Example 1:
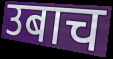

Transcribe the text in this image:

उबाच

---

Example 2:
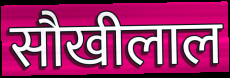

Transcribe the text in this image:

सौखीलाल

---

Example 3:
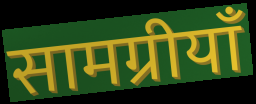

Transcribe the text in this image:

सामग्रीयाँ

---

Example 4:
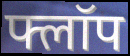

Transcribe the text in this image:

फ्लॉप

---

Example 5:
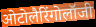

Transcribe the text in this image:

ओटोलैरिंगोलॉजी